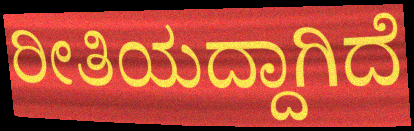
ರೀತಿಯದ್ದಾಗಿದೆ